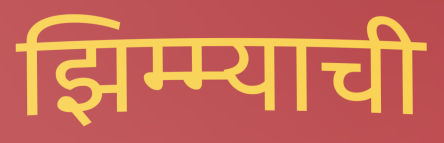
झिम्म्याची